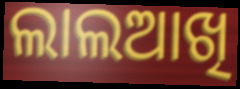
ଲାଲଆଖି